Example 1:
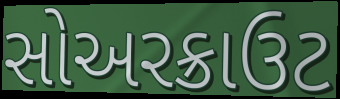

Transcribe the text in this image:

સોઅરક્રાઉટ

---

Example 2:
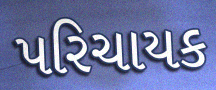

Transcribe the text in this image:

પરિચાયક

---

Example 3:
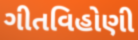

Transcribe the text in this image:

ગીતવિહોણી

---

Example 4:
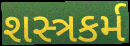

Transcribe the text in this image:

શસ્ત્રકર્મ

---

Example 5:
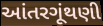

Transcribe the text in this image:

આંતરગૂંથણી